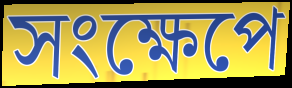
সংক্ষেপে